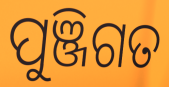
ପୁଞ୍ଜିଗତ